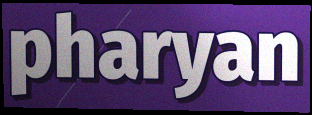
pharyan